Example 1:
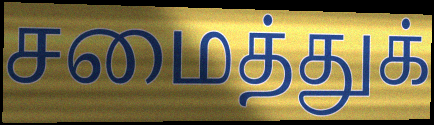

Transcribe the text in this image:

சமைத்துக்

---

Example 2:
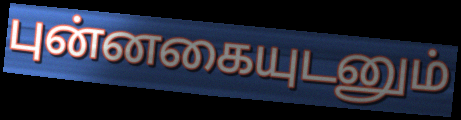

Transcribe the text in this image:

புன்னகையுடனும்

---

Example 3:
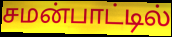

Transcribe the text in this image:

சமன்பாட்டில்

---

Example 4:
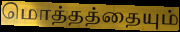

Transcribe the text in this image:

மொத்தத்தையும்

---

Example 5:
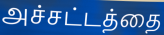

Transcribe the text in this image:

அச்சட்டத்தை